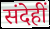
संदेहीं